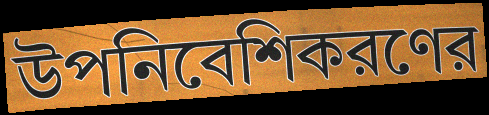
উপনিবেশিকরণের